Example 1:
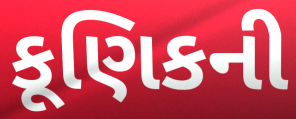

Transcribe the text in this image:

કૂણિકની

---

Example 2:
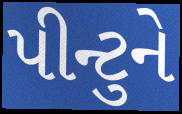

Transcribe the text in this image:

પીન્ટુને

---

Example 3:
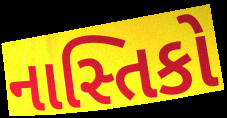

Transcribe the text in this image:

નાસ્તિકો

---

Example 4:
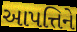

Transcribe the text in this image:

આપત્તિને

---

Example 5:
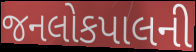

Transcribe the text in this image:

જનલોકપાલની